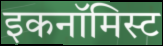
इकनॉमिस्‍ट